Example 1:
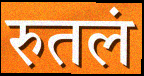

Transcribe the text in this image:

रुतलं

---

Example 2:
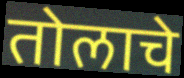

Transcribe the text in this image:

तोलाचे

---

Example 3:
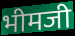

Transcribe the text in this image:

भीमजी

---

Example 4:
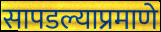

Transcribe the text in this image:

सापडल्याप्रमाणे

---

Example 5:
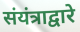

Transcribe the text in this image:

संयंत्राद्वारे